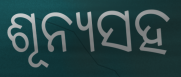
ଶୂନ୍ୟସହ